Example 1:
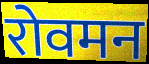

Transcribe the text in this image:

रोवमन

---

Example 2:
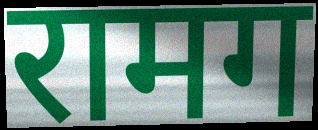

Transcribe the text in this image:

रामग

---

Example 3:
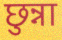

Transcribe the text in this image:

छुन्ना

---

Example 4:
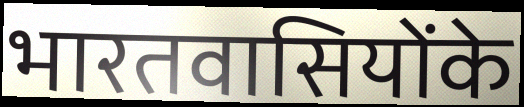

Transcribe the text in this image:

भारतवासियोंके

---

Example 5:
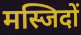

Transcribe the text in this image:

मस्जिदों